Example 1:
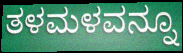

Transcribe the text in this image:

ತಳಮಳವನ್ನೂ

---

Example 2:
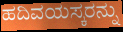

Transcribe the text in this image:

ಹದಿವಯಸ್ಕರನ್ನು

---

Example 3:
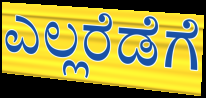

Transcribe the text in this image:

ಎಲ್ಲರೆಡೆಗೆ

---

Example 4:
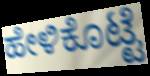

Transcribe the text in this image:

ಹೇಳಿಕೊಟ್ಟೆ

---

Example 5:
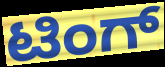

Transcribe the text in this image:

ಟಿಂಗ್